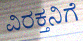
ವಿರಕ್ತನಿಗೆ